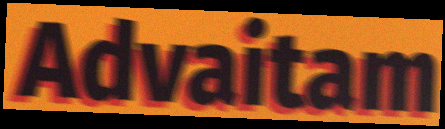
Advaitam